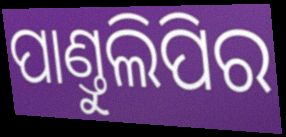
ପାଣ୍ତୁଲିପିର